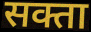
सक्ता